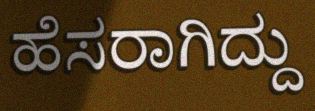
ಹೆಸರಾಗಿದ್ದು